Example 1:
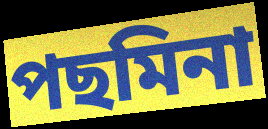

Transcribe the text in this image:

পছমিনা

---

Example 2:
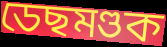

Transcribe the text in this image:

ডেছমণ্ডক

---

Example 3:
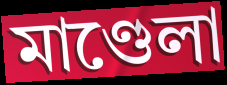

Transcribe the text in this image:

মাণ্ডেলা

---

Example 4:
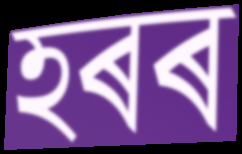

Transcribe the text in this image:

হৰৰ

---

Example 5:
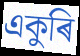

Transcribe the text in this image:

একুৰি